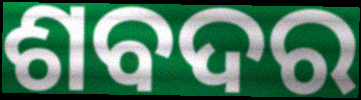
ଶବଦର